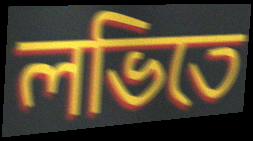
লভিতে